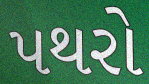
પથરો